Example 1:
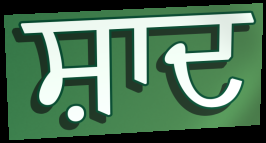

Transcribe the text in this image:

ਸ਼ਾਦ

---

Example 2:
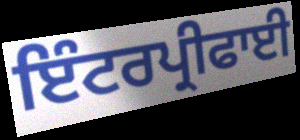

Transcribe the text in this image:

ਇੰਟਰਪ੍ਰੀਫਾਈ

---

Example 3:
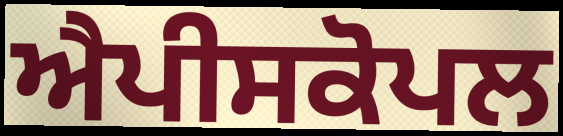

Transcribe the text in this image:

ਐਪੀਸਕੋਪਲ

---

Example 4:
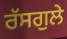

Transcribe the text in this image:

ਰੱਸਗੁਲੇ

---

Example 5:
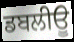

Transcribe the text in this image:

ਡਬਲੀਊ